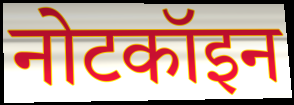
नोटकॉइन